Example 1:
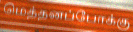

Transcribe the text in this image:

மெத்தனப்போக்கு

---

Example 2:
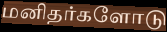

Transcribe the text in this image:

மனிதர்களோடு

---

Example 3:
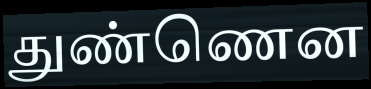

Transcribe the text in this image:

துண்ணென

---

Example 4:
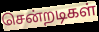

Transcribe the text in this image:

சென்றடிகள்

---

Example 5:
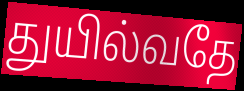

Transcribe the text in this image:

துயில்வதே